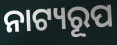
ନାଟ୍ୟରୂପ